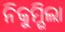
ନିକୁମ୍ଭିଲା